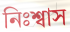
নিঃশ্বাস